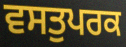
ਵਸਤੁਪਰਕ